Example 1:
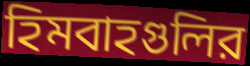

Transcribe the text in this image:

হিমবাহগুলির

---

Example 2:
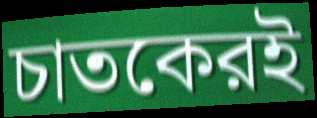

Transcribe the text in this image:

চাতকেরই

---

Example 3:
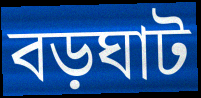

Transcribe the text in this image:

বড়ঘাট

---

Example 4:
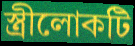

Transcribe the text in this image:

স্ত্রীলোকটি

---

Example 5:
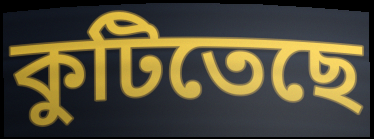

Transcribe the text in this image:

কুটিতেছে